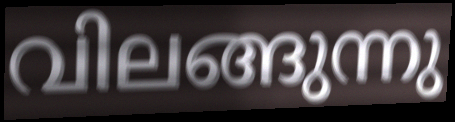
വിലങ്ങുന്നു